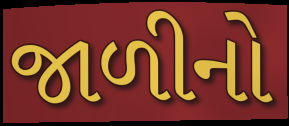
જાળીનો